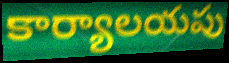
కార్యాలయపు